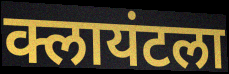
क्लायंटला